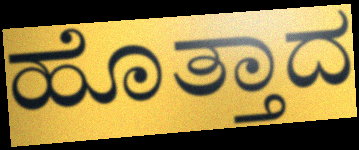
ಹೊತ್ತಾದ